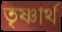
তৃষ্ণার্থ